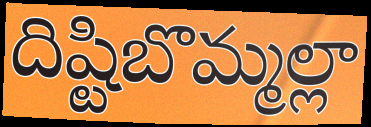
దిష్టిబొమ్మల్లా